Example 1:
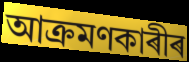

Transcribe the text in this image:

আক্ৰমণকাৰীৰ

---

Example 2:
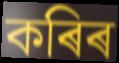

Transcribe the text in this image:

কৰিৰ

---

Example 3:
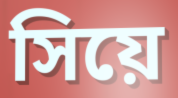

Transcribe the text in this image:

সিয়ে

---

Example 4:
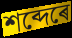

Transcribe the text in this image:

শব্দেৰে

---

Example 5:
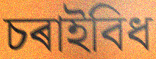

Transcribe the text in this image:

চৰাইবিধ